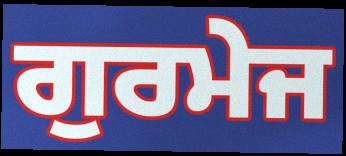
ਗੁਰਮੇਜ